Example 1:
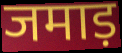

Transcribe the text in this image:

जमाड़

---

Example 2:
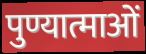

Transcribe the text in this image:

पुण्यात्माओं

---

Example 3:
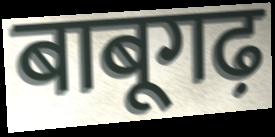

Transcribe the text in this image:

बाबूगढ़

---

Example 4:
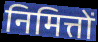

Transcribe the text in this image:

निमित्तों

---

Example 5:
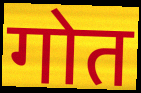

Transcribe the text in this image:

गोत